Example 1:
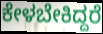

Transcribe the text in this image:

ಕೇಳಬೇಕಿದ್ದರೆ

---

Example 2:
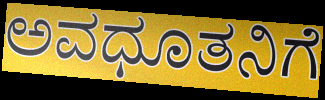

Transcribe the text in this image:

ಅವಧೂತನಿಗೆ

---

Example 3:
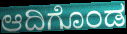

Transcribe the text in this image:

ಆದಿಗೊಂಡ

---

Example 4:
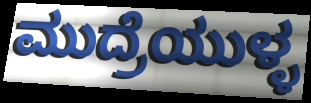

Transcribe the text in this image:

ಮುದ್ರೆಯುಳ್ಳ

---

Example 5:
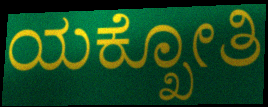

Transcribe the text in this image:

ಯಕ್ಖೋತಿ